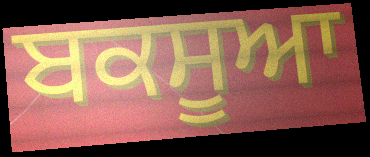
ਬਕਸੂਆ